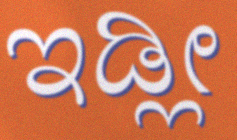
ಇಡ್ಲೀ